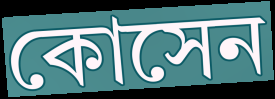
কোসেন